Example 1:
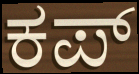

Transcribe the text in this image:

ಕಪ್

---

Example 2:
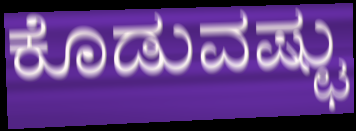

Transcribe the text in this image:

ಕೊಡುವಷ್ಟು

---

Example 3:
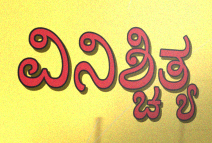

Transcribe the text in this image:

ವಿನಿಶ್ಚಿತ್ಯ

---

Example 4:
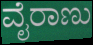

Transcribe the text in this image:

ವೈರಾಣು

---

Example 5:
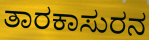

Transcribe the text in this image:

ತಾರಕಾಸುರನ